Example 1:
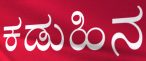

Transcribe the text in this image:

ಕಡುಹಿನ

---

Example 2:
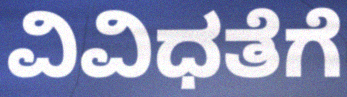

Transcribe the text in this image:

ವಿವಿಧತೆಗೆ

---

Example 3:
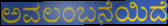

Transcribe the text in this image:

ಅವಲಂಬನೆಯಿದೆ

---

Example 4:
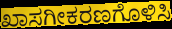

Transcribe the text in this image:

ಖಾಸಗೀಕರಣಗೊಳಿಸಿ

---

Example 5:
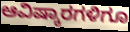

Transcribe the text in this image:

ಆವಿಷ್ಕಾರಗಳಿಗೂ